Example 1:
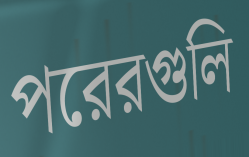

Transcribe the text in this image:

পরেরগুলি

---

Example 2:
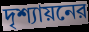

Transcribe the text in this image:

দৃশ্যায়নের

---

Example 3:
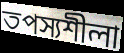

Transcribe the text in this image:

তপস্যশীলা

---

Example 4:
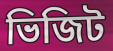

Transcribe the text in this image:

ভিজিট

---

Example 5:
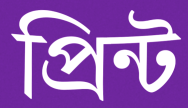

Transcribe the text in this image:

প্রিন্ট